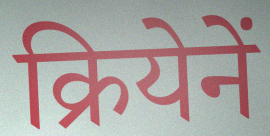
क्रियेनें